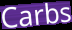
Carbs